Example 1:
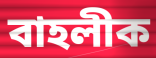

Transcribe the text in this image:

বাহলীক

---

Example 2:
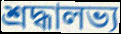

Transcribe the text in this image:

শ্রদ্ধালভ্য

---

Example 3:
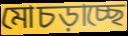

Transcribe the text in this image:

মোচড়াচ্ছে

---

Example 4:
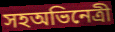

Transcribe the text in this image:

সহঅভিনেত্রী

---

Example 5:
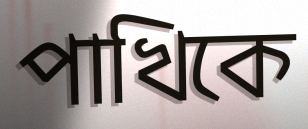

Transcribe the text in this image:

পাখিকে